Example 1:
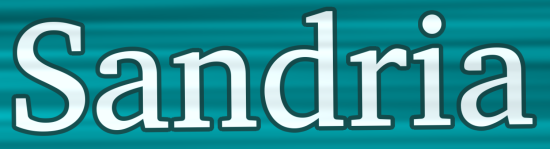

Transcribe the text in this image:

Sandria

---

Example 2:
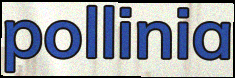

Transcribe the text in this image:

pollinia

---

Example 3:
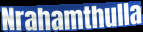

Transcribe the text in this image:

Nrahamthulla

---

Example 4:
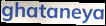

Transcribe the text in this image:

ghataneya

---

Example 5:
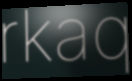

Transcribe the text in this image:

rkaq